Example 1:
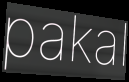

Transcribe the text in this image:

pakal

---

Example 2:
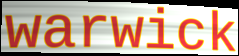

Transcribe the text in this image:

warwick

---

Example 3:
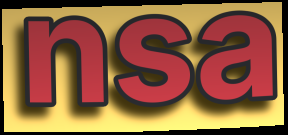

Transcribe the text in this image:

nsa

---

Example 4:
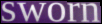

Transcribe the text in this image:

sworn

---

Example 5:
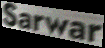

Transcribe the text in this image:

Sarwar